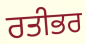
ਰਤੀਭਰ